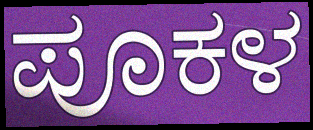
ಪೂಕಳ